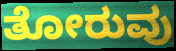
ತೋರುವು